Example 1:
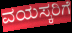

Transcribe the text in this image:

ವಯಸ್ಕರಿಗೆ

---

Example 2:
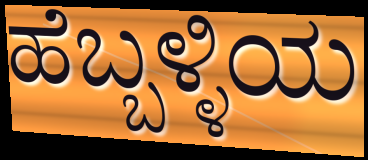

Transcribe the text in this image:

ಹೆಬ್ಬಳ್ಳಿಯ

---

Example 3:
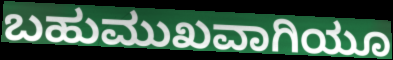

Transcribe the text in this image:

ಬಹುಮುಖವಾಗಿಯೂ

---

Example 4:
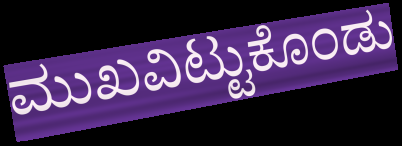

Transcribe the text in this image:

ಮುಖವಿಟ್ಟುಕೊಂಡು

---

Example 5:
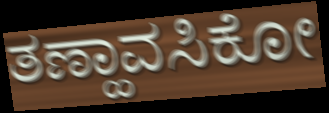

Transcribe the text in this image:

ತಣ್ಹಾವಸಿಕೋ